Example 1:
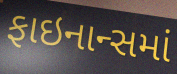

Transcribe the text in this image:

ફાઇનાન્સમાં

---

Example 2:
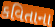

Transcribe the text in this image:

કવિતાના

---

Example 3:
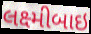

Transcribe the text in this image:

લક્ષ્મીબાઇ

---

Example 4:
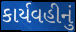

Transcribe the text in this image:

કાર્યવહીનું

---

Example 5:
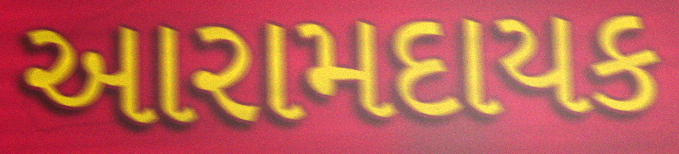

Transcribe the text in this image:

આરામદાયક